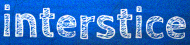
interstice